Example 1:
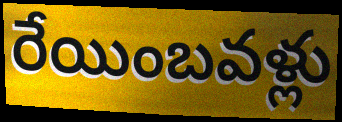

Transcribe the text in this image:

రేయింబవళ్లు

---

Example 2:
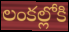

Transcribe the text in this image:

లంకల్లోకి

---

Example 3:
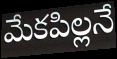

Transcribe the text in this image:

మేకపిల్లనే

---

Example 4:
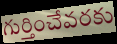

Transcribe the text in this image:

గుర్తించేవరకు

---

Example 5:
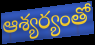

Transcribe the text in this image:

ఆశ్యర్యంతో